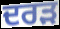
ਦਰੜ